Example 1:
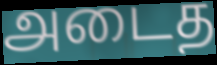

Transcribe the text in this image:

அடைத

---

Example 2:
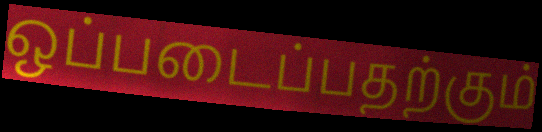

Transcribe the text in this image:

ஒப்படைப்பதற்கும்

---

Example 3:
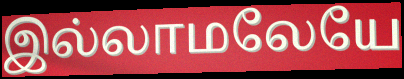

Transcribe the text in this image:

இல்லாமலேயே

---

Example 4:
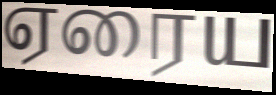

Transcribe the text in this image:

ஏரைய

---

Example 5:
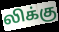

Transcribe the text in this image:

லிக்கு